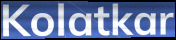
Kolatkar